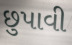
છુપાવી